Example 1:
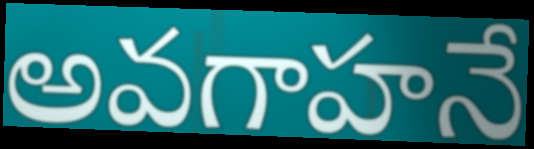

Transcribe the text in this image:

అవగాహనే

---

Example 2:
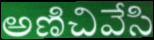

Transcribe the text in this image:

అణిచివేసి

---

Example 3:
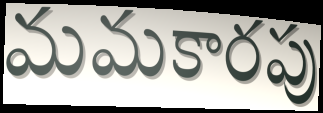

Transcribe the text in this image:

మమకారపు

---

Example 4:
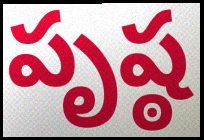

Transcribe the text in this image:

పృష్ఠ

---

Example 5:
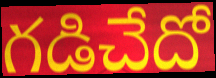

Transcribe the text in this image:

గడిచేదో